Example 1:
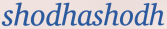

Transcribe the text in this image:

shodhashodh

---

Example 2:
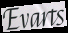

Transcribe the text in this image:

Evarts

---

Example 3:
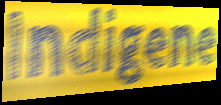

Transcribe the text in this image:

Indigene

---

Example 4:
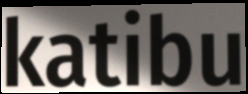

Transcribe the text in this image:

katibu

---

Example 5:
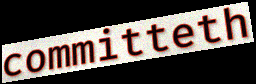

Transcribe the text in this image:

committeth